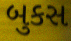
બુકસ